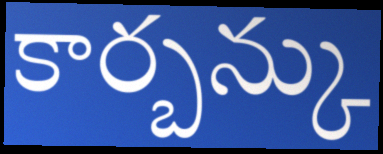
కార్బన్కు